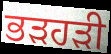
ਭੜਹੜੀ